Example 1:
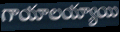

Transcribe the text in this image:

గాయాలయ్యాయి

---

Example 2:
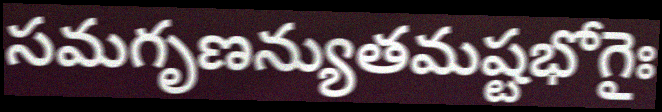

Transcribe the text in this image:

సమగృణన్యుతమష్టభోగైః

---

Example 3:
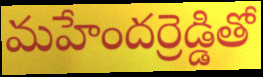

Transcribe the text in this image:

మహేందర్రెడ్డితో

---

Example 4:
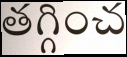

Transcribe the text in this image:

తగ్గించ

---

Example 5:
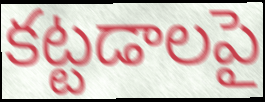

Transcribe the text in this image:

కట్టడాలపై